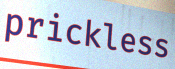
prickless